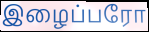
இழைப்பரோ